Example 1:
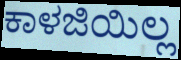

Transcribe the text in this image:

ಕಾಳಜಿಯಿಲ್ಲ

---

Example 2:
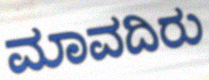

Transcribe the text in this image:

ಮಾವದಿರು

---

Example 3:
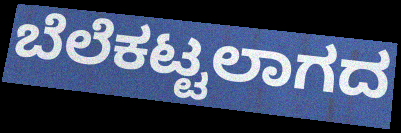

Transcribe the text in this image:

ಬೆಲೆಕಟ್ಟಲಾಗದ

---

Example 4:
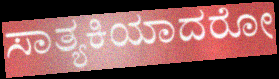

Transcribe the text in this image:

ಸಾತ್ಯಕಿಯಾದರೋ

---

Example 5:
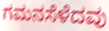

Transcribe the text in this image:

ಗಮನಸೆಳೆದವು